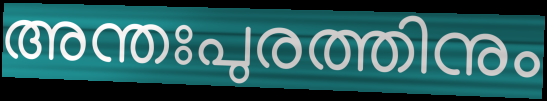
അന്തഃപുരത്തിനും